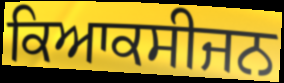
ਕਿਆਕਸੀਜਨ